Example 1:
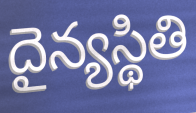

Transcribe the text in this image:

దైన్యస్థితి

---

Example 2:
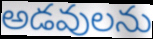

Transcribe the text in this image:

అడవులను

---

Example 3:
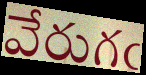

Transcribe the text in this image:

వేరుగఁ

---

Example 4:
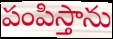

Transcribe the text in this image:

పంపిస్తాను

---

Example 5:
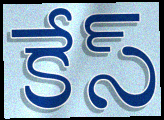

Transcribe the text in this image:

కేస్